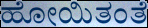
ಹೋಯಿತಂತೆ